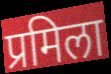
प्रमिला